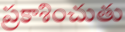
ప్రకాశించుతు